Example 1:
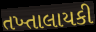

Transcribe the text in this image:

તખ્તાલાયકી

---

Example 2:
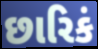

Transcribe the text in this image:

છારિકં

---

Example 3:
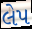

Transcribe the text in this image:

લેપ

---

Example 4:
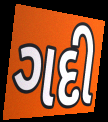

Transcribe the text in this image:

ગદી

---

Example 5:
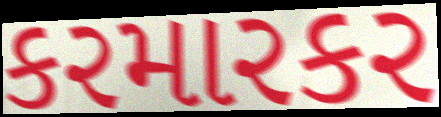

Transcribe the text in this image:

કરમારકર